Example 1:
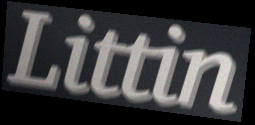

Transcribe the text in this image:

Littin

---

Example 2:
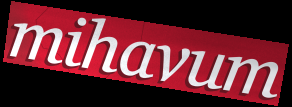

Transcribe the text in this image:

mihavum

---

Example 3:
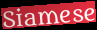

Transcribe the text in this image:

Siamese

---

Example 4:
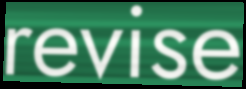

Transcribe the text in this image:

revise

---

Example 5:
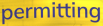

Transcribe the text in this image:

permitting